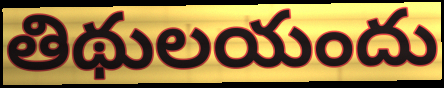
తిథులయందు